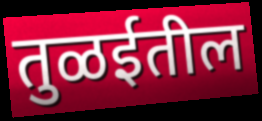
तुळईतील